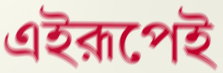
এইরূপেই